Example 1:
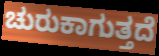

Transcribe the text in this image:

ಚುರುಕಾಗುತ್ತದೆ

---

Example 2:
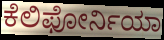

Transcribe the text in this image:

ಕೆಲಿಫೋರ್ನಿಯಾ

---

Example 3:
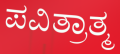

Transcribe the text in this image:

ಪವಿತ್ರಾತ್ಮ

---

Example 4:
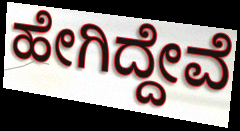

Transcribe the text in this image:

ಹೇಗಿದ್ದೇವೆ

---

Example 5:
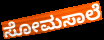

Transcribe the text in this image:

ಸೋಮಸಾಲೆ